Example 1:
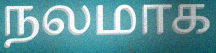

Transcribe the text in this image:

நலமாக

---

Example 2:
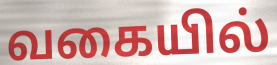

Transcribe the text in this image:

வகையில்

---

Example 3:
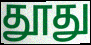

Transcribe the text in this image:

தூது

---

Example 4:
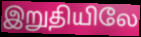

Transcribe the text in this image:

இறுதியிலே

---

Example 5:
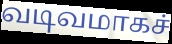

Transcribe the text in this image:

வடிவமாகச்